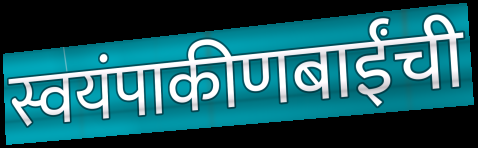
स्वयंपाकीणबाईंची